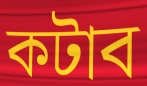
কটাব